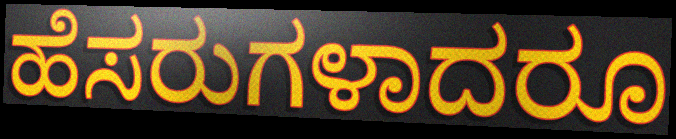
ಹೆಸರುಗಳಾದರೂ